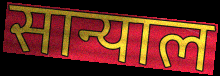
सान्याल